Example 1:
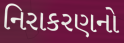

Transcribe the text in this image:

નિરાકરણનો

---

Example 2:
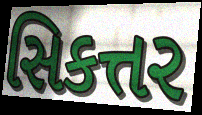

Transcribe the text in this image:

સિકત્તર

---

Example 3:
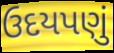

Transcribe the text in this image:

ઉદયપણું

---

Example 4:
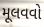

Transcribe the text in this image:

મૂલવવો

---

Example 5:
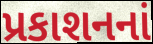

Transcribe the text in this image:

પ્રકાશનનાં